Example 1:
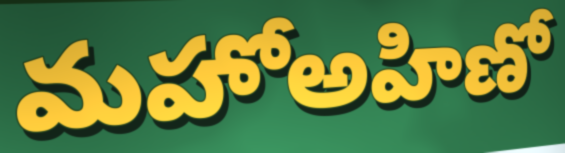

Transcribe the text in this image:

మహోఅహిణో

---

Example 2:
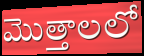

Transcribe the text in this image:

మొత్తాలలో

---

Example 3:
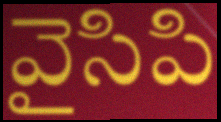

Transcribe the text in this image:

వైసిపి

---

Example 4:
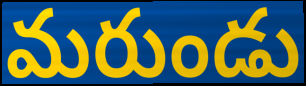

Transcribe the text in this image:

మరుండు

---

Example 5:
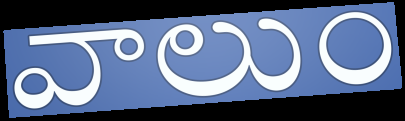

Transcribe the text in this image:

వాలుం